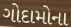
ગોદામોના